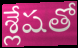
శ్లేషతో